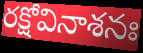
రక్షోవినాశనః